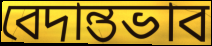
বেদান্তভাব